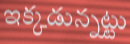
ఇక్కడున్నట్టు